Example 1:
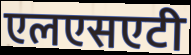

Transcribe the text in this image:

एलएसएटी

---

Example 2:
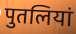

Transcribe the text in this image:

पुतलियां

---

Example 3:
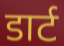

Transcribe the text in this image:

डार्ट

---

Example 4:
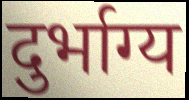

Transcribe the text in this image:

दुर्भाग्य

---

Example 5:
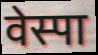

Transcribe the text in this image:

वेस्पा